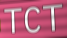
TCT